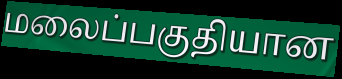
மலைப்பகுதியான